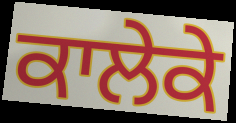
ਕਾਲੇਕੇ